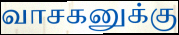
வாசகனுக்கு